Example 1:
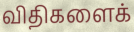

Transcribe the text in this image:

விதிகளைக்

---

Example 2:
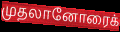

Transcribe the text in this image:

முதலானோரைக்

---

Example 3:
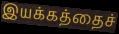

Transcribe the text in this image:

இயக்கத்தைச்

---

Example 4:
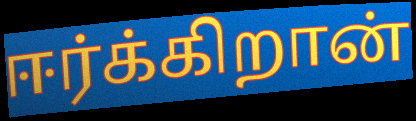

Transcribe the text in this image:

ஈர்க்கிறான்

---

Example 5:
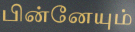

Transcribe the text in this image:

பின்னேயும்